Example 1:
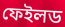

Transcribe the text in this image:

ফেইলড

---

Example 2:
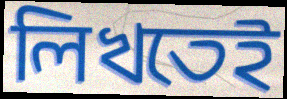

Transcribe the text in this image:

লিখতেই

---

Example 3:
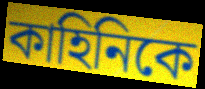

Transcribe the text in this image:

কাহিনিকে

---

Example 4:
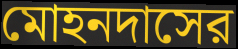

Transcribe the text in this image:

মোহনদাসের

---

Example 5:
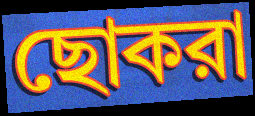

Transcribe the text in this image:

ছোকরা